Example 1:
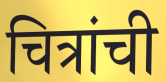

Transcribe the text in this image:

चित्रांची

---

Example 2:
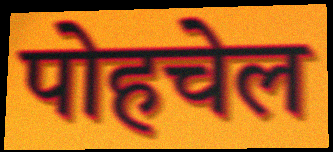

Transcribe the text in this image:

पोहचेल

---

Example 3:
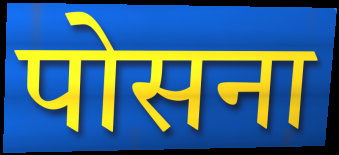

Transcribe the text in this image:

पोसना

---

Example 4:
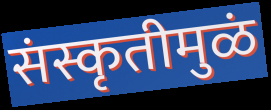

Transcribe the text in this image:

संस्कृतीमुळं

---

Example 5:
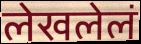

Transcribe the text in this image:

लेखलेलं